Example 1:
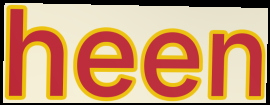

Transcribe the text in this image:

heen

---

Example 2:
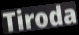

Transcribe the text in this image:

Tiroda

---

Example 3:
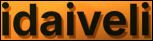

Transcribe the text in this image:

idaiveli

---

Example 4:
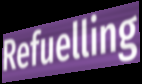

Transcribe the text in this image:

Refuelling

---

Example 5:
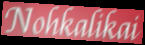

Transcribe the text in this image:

Nohkalikai